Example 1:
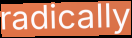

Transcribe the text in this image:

radically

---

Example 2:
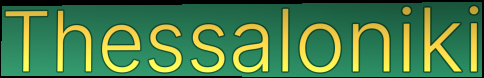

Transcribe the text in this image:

Thessaloniki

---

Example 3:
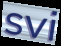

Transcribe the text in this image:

svi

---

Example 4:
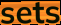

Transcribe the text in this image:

sets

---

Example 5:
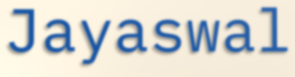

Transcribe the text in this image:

Jayaswal